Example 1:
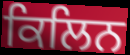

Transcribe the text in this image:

ਕਿਲਿਨ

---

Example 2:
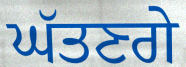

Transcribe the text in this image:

ਘੱਤਣਗੇ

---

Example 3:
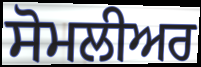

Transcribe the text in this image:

ਸੋਮਲੀਅਰ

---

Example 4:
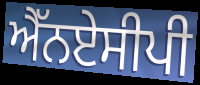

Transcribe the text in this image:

ਐੱਨਏਸੀਪੀ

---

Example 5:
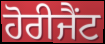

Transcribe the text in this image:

ਹੋਰੀਜੈਂਟ